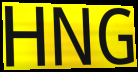
HNG